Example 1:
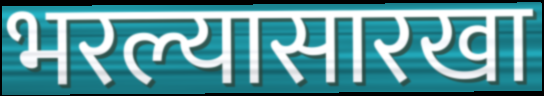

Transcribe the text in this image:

भरल्यासारखा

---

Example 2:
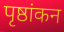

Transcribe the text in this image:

पृष्ठांकन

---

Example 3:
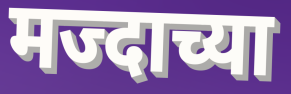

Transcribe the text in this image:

मज्दाच्या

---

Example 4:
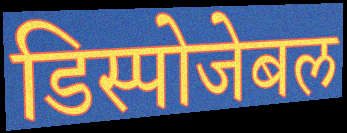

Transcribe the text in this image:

डिस्पोजेबल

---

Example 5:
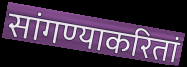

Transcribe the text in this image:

सांगण्याकरितां